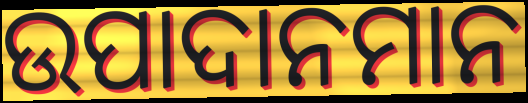
ଉପାଦାନମାନ